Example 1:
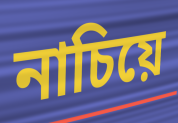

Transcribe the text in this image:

নাচিয়ে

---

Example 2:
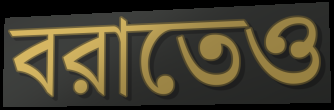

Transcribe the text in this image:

বরাতেও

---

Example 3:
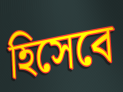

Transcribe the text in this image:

হিসেবে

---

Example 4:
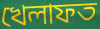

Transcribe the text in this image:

খেলাফত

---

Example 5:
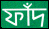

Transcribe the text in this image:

ফাঁদ